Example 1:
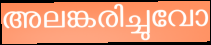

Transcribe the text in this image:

അലങ്കരിച്ചുവോ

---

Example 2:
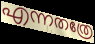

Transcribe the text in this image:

എന്നതത്രേ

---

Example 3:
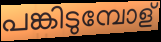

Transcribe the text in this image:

പങ്കിടുമ്പോള്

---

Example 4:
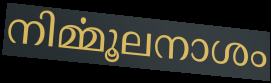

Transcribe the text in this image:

നിൎമ്മൂലനാശം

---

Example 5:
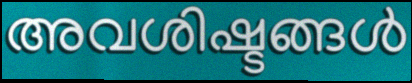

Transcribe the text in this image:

അവശിഷ്ടങ്ങൾ